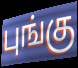
புங்கு